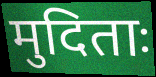
मुदिताः